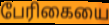
பேரிகையை